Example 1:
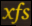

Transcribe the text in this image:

xfs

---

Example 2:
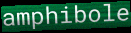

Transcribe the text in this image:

amphibole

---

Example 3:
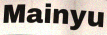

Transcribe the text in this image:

Mainyu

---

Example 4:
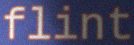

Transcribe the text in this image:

flint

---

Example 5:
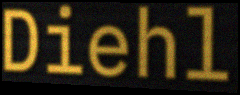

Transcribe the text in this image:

Diehl